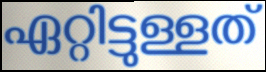
ഏറ്റിട്ടുള്ളത്